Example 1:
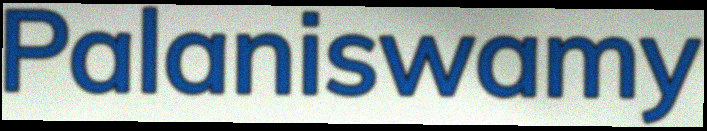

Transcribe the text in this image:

Palaniswamy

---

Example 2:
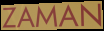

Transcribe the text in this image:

ZAMAN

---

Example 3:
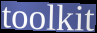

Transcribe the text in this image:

toolkit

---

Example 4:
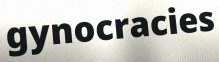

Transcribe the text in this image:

gynocracies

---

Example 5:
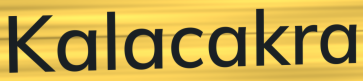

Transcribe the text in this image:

Kalacakra